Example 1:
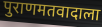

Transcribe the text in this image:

पुराणमतवादाला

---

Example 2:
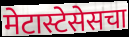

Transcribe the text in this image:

मेटास्टेसेसचा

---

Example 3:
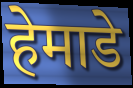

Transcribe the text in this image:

हेमाडे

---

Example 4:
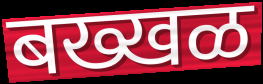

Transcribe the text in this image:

बख्खळ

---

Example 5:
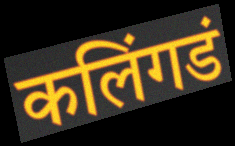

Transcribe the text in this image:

कलिंगडं